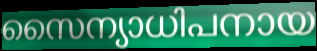
സൈന്യാധിപനായ